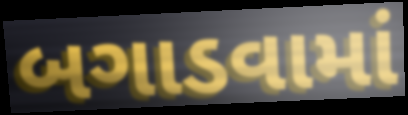
બગાડવામાં